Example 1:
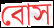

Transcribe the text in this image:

বোস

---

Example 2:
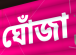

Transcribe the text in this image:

ঘোঁজা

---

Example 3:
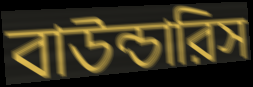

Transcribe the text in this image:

বাউন্ডারিস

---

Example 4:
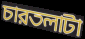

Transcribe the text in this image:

চারতলাটা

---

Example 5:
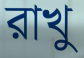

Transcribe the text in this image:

রাখু